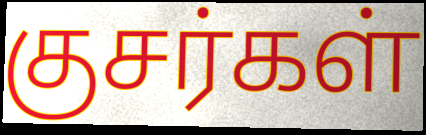
குசர்கள்